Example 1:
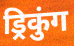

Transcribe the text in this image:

ड्रिकुंग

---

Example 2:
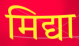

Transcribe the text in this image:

मिद्या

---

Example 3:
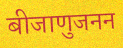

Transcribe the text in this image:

बीजाणुजनन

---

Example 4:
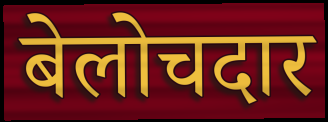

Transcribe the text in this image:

बेलोचदार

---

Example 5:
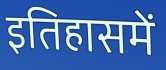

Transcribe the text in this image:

इतिहासमें